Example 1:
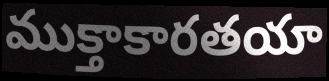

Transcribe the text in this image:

ముక్తాకారతయా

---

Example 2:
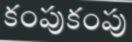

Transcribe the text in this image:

కంపుకంపు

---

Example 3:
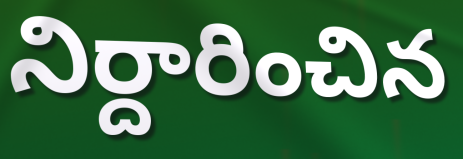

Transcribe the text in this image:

నిర్దారించిన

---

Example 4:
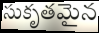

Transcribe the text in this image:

సుకృతమైన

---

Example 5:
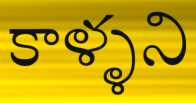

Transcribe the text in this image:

కాళ్ళని